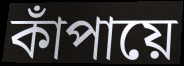
কাঁপায়ে